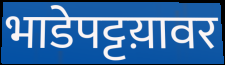
भाडेपट्टय़ावर